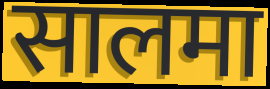
सालमा